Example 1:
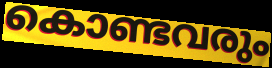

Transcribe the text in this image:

കൊണ്ടവരും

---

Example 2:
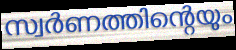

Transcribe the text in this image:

സ്വർണത്തിന്റെയും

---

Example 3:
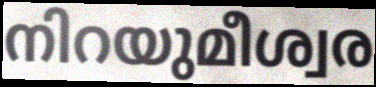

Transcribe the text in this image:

നിറയുമീശ്വര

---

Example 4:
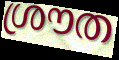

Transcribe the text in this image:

ശ്രൗത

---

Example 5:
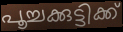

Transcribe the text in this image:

പൂച്ചക്കുട്ടിക്ക്